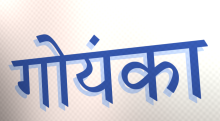
गोयंका